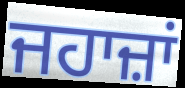
ਜਹਾਜ਼ਾਂ